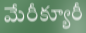
మేరీక్యూరీ